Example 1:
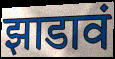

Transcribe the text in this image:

झाडावं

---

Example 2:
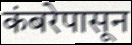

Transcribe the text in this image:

कंबरेपासून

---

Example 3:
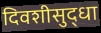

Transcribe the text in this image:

दिवशीसुद्धा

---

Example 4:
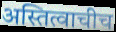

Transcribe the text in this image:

अस्तित्वाचीच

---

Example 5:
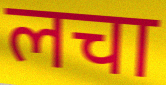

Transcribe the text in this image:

लचा